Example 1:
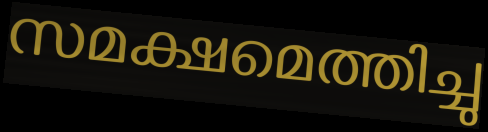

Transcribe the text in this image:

സമക്ഷമെത്തിച്ചു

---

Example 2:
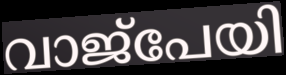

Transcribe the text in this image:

വാജ്പേയി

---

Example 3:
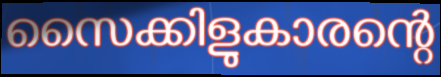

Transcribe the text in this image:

സൈക്കിളുകാരന്റെ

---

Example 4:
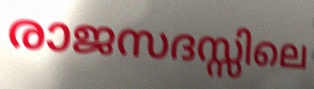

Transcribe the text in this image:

രാജസദസ്സിലെ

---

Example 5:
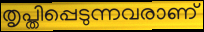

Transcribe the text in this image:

തൃപ്തിപ്പെടുന്നവരാണ്